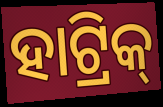
ହାଟ୍ରିକ୍